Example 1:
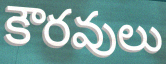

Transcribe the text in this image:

కౌరవులు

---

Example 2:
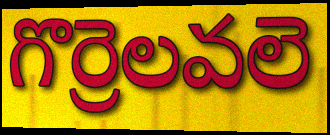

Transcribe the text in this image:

గొర్రెలవలె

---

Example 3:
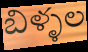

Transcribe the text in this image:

బిళ్ళల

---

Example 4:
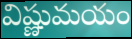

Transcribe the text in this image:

విష్ణుమయం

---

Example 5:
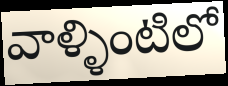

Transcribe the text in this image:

వాళ్ళింటిలో